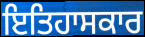
ਇਤਿਹਾਸਕਾਰ